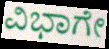
ವಿಭಾಗೇ